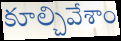
కూల్చివేశాం